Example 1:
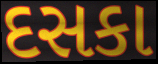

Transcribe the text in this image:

દસકા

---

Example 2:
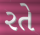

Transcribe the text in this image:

રતે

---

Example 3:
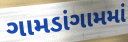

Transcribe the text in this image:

ગામડાંગામમાં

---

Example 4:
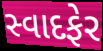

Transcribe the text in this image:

સ્વાદફેર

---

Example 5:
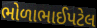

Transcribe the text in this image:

ભોળાભાઈપટેલ